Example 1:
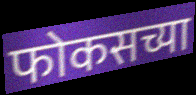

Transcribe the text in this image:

फोकसच्या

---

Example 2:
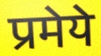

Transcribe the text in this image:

प्रमेये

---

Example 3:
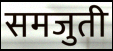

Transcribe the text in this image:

समजुती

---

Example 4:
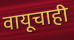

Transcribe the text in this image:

वायूचाही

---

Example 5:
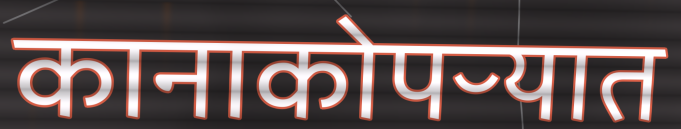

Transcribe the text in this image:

कानाकोपऱ्यात